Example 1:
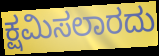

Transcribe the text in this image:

ಕ್ಷಮಿಸಲಾರದು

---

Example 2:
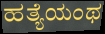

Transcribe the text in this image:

ಹತ್ಯೆಯಂಥ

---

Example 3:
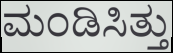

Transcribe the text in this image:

ಮಂಡಿಸಿತ್ತು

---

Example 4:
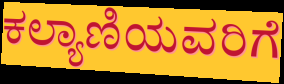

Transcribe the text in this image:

ಕಲ್ಯಾಣಿಯವರಿಗೆ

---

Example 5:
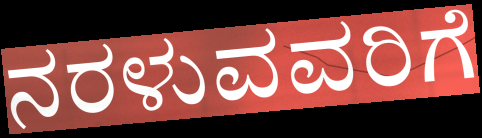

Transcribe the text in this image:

ನರಳುವವರಿಗೆ